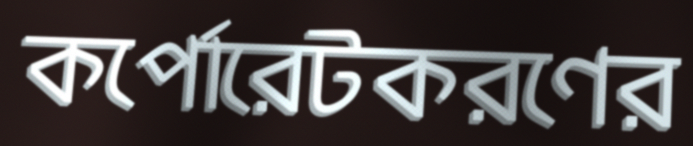
কর্পোরেটকরণের